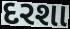
દરશા